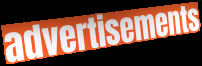
advertisements